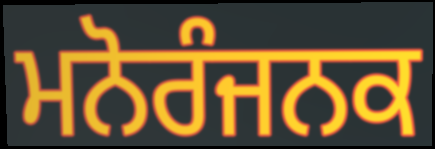
ਮਨੋਰੰਜਨਕ